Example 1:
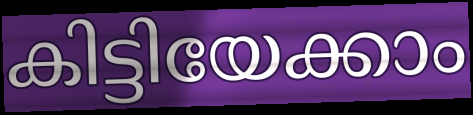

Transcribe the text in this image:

കിട്ടിയേക്കാം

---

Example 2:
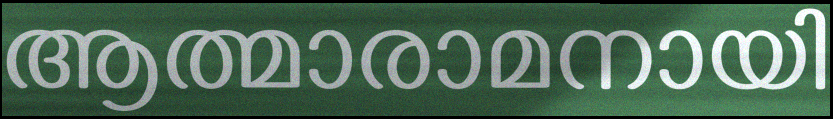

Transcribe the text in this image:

ആത്മാരാമനായി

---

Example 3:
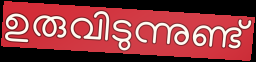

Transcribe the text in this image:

ഉരുവിടുന്നുണ്ട്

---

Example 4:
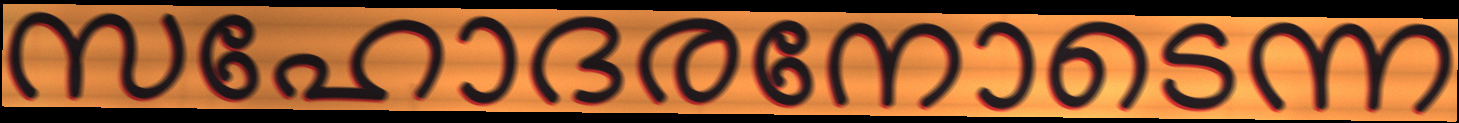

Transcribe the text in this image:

സഹോദരനോടെന്ന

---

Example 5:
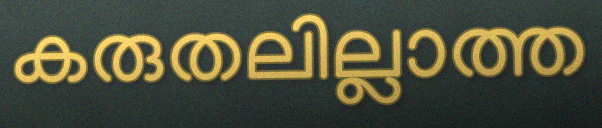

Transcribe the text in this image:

കരുതലില്ലാത്ത